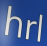
hrl